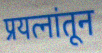
प्रयत्नांतून